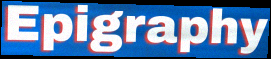
Epigraphy